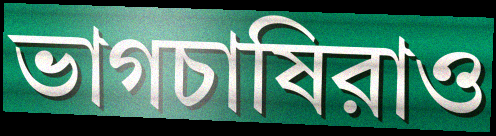
ভাগচাষিরাও